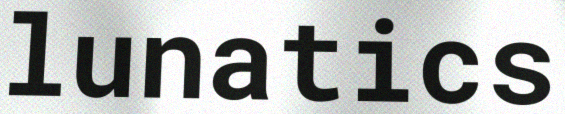
lunatics